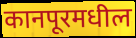
कानपूरमधील